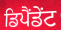
ਡਿਪੈਂਡੇਂਟ